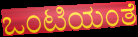
ಒಂಟಿಯಂತೆ